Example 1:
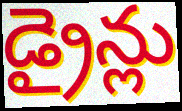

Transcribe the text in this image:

డ్రైన్లు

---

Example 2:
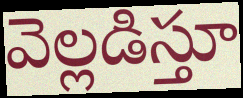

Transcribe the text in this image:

వెల్లడిస్తూ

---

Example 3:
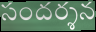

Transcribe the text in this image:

సందర్శన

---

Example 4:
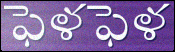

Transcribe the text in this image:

ఫెళఫెళ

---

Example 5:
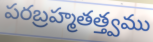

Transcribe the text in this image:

పరబ్రహ్మతత్త్వము